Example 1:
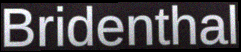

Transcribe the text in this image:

Bridenthal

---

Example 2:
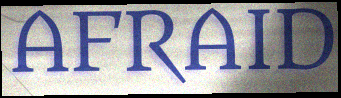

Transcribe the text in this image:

AFRAID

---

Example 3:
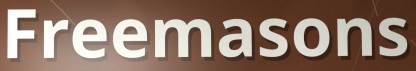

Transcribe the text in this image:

Freemasons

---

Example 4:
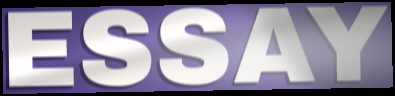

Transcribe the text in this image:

ESSAY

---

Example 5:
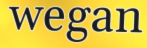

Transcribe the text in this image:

wegan